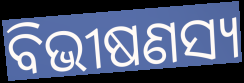
ବିଭୀଷଣସ୍ୟ